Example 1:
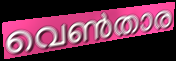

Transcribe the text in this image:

വെൺതാര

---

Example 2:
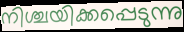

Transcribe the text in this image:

നിശ്ചയിക്കപ്പെടുന്നു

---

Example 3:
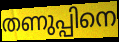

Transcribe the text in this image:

തണുപ്പിനെ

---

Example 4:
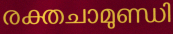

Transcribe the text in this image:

രക്തചാമുണ്ഡി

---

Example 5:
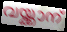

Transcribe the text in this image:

വയ്ക്കാന്